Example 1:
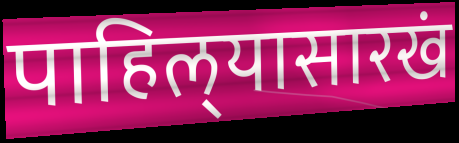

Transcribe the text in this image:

पाहिल्यासारखं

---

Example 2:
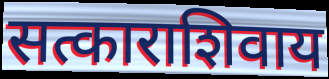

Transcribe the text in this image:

सत्काराशिवाय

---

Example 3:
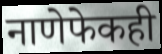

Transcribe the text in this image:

नाणेफेकही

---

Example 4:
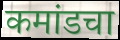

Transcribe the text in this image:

कमांडचा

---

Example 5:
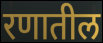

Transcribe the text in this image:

रणातील